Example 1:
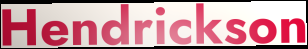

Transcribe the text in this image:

Hendrickson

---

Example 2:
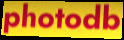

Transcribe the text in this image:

photodb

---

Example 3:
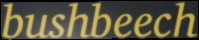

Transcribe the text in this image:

bushbeech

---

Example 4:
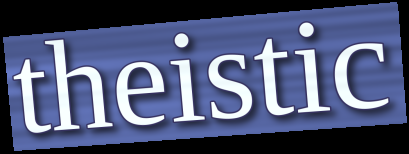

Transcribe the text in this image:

theistic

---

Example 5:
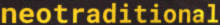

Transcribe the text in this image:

neotraditional